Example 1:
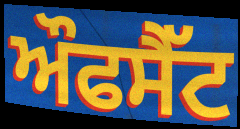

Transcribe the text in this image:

ਔਫਸੈੱਟ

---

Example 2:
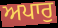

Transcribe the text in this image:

ਅਪਾਰੁ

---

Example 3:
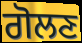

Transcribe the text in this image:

ਗੋਲਣ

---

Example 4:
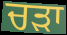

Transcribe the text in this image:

ਚੜਾ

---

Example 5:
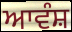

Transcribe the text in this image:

ਆਵੰਸ਼